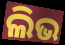
ଲିଭ